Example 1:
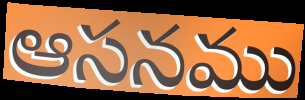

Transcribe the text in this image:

ఆసనము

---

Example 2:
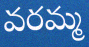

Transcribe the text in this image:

వరమ్మ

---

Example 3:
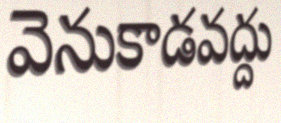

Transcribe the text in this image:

వెనుకాడవద్దు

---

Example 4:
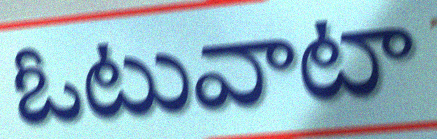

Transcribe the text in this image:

ఓటువాటా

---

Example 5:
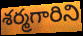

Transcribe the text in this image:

శర్మగారిని